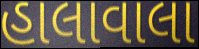
હાલાવાલા